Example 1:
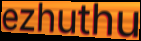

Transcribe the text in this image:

ezhuthu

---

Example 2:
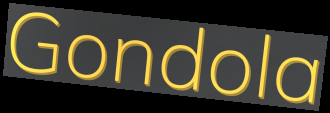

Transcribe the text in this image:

Gondola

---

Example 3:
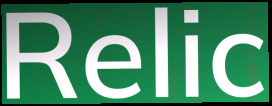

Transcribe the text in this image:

Relic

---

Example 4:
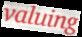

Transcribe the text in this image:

valuing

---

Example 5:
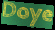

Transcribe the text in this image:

Doye